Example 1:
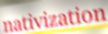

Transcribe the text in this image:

nativization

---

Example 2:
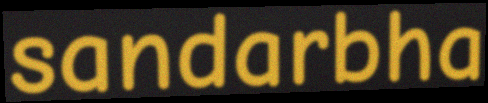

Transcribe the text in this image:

sandarbha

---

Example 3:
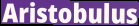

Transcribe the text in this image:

Aristobulus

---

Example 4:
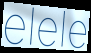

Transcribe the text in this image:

elele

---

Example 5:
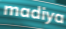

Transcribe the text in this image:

madiya